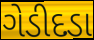
ગેડીદડા